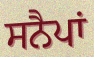
ਸਨੈਪਾਂ